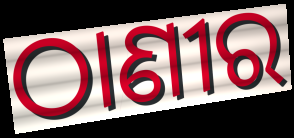
ଠାଣୀର